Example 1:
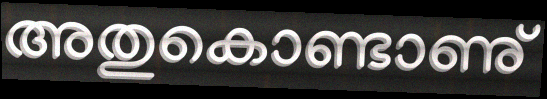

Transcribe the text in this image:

അതുകൊണ്ടാണു്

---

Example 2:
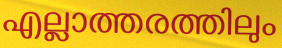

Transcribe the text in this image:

എല്ലാത്തരത്തിലും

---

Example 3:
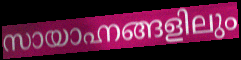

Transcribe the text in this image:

സായാഹ്നങ്ങളിലും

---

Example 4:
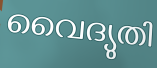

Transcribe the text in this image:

വൈദ്യുതി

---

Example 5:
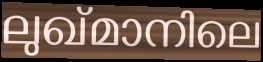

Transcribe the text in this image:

ലുഖ്മാനിലെ